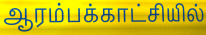
ஆரம்பக்காட்சியில்